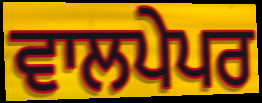
ਵਾਲਪੇਪਰ